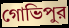
গোভিপুর